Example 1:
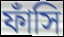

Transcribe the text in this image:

ফাঁসি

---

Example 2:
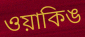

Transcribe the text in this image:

ওয়াকিঙ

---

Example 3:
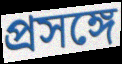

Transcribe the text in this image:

প্রসঙ্গে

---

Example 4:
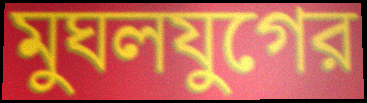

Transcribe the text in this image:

মুঘলযুগের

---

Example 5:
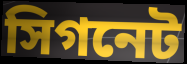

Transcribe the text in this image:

সিগনেট